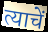
त्याचें